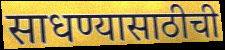
साधण्यासाठीची